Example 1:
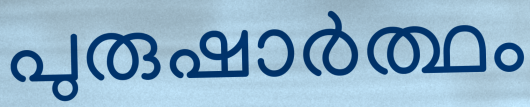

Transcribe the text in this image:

പുരുഷാർത്ഥം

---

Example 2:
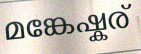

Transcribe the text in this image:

മങ്കേഷ്കര്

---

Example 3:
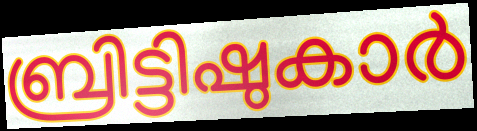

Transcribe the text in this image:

ബ്രിട്ടിഷുകാർ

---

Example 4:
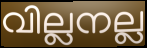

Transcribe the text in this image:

വില്ലനല്ല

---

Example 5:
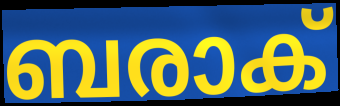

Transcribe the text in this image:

ബരാക്